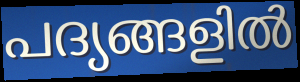
പദ്യങ്ങളിൽ